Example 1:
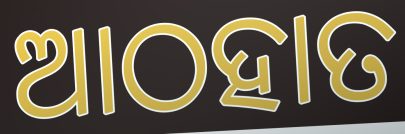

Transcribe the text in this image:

ଆଠହାତ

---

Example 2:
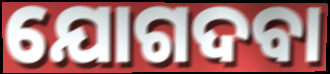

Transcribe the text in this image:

ଯୋଗଦବା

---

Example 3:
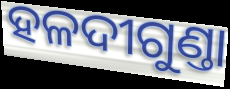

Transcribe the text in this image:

ହଳଦୀଗୁଣ୍ତା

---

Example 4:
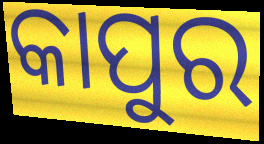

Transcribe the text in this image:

କାପୁର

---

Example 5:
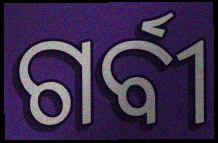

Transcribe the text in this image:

ଗର୍ବୀ